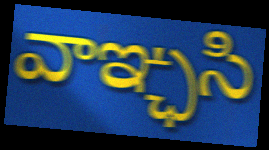
వాఞ్ఛసి